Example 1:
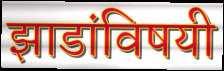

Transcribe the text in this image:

झाडांविषयी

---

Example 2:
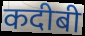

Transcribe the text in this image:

कदीबी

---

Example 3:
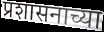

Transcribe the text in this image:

प्रशासनाच्या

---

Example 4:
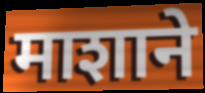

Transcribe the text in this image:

माशाने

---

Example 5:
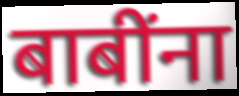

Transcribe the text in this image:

बाबींना